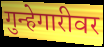
गुन्हेगारीवर